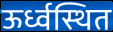
ऊर्ध्वस्थित